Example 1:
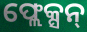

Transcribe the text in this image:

ଫ୍ଲେକ୍ସନ୍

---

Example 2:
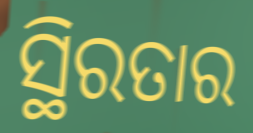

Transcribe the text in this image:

ସ୍ଥିରତାର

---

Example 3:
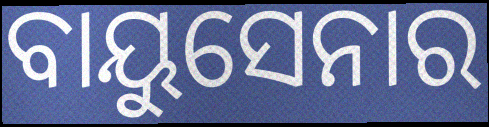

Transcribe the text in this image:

ବାୟୁସେନାର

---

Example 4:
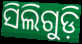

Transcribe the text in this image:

ସିଲିଗୁଡ଼ି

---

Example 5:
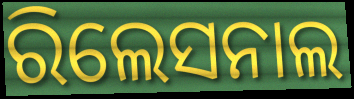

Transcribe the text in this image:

ରିଲେସନାଲ